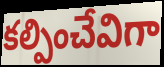
కల్పించేవిగా